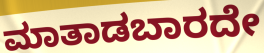
ಮಾತಾಡಬಾರದೇ